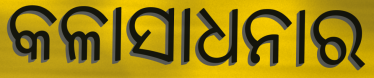
କଳାସାଧନାର